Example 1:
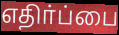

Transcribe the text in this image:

எதிர்ப்பை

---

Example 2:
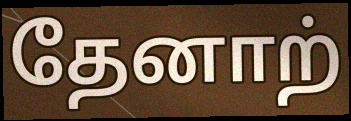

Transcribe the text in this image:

தேனாற்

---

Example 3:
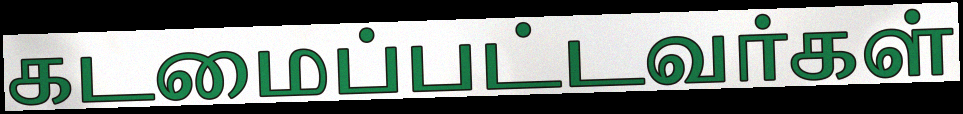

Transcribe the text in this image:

கடமைப்பட்டவர்கள்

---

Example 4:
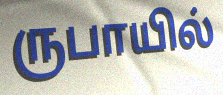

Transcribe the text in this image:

ருபாயில்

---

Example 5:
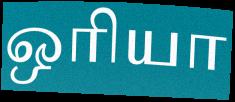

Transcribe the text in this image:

ஒரியா